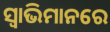
ସ୍ୱାଭିମାନରେ